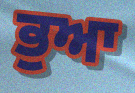
ਭੁਆ